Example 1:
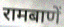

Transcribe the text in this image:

रामबाणें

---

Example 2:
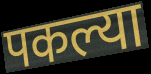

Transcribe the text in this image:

पकल्या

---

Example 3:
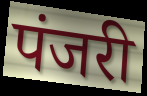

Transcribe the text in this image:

पंजरी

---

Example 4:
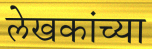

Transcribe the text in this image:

लेखकांच्या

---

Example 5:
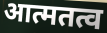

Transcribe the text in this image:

आत्मतत्व